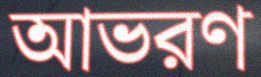
আভরণ